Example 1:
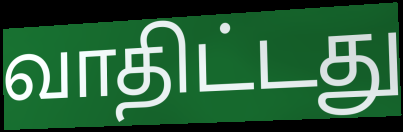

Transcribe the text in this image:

வாதிட்டது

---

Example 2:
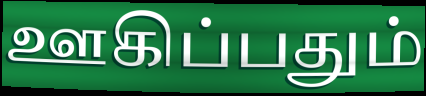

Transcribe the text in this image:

ஊகிப்பதும்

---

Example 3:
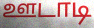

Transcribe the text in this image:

ஊடாடி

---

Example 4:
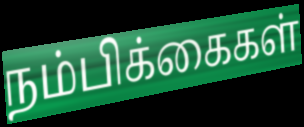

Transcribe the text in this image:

நம்பிக்கைகள்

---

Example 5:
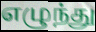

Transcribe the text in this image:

எழுந்து